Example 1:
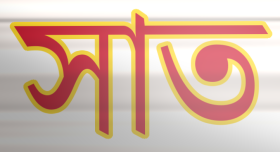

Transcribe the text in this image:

সাত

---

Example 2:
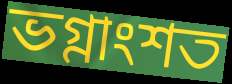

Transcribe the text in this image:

ভগ্নাংশত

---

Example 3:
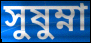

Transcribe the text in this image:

সুষুম্না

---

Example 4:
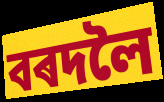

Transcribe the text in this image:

বৰদলৈ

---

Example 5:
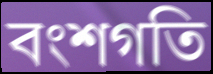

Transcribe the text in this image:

বংশগতি